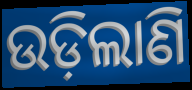
ଉଡ଼ିଲାଣି